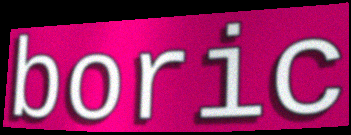
boric